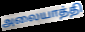
அலையாத்தி